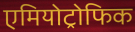
एमियोट्रोफिक